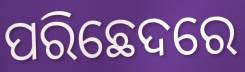
ପରିଛେଦରେ